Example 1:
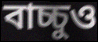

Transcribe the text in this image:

বাচ্চুও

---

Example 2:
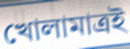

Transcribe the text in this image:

খোলামাত্রই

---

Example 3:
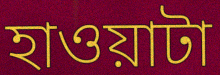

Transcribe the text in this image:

হাওয়াটা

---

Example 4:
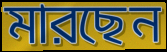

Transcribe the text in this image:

মারছেন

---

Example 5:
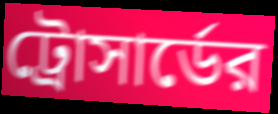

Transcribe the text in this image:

ট্রোসার্ডের